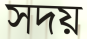
সদয়